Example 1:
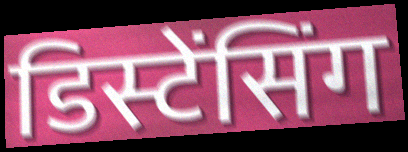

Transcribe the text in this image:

डिस्टेंसिंग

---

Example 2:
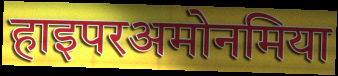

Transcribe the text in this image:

हाइपरअमोनमिया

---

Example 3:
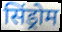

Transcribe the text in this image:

सिंड्रोम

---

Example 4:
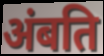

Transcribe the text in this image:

अंबति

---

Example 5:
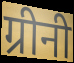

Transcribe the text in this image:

ग्रीनी